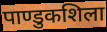
पाण्डुकशिला